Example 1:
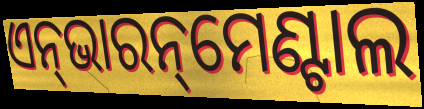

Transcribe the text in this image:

ଏନ୍‌ଭାରନ୍‌ମେଣ୍ଟାଲ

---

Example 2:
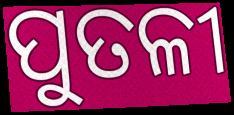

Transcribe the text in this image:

ପୁତଳୀ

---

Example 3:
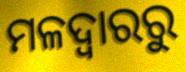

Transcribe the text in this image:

ମଳଦ୍ୱାରରୁ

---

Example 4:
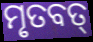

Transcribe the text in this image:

ମୃତବତ୍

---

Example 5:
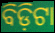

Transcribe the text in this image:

ବିଡ଼ିଟା